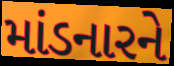
માંડનારને